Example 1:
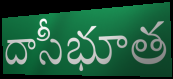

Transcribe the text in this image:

దాసీభూత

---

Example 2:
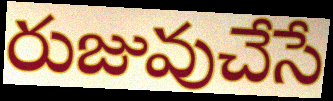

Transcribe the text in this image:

రుజువుచేసే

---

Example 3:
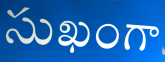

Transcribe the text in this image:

సుఖంగా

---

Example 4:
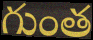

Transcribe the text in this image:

గుంత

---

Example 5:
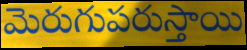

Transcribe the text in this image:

మెరుగుపరుస్తాయి